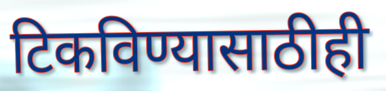
टिकविण्यासाठीही